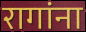
रागांना